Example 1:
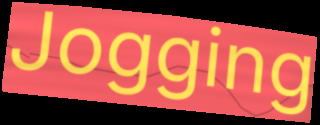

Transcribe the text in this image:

Jogging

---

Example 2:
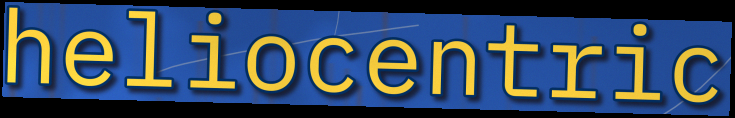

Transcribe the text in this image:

heliocentric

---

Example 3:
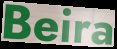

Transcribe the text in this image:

Beira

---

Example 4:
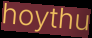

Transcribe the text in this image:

hoythu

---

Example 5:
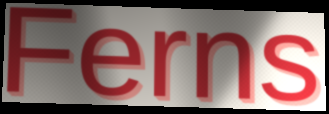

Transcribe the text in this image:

Ferns